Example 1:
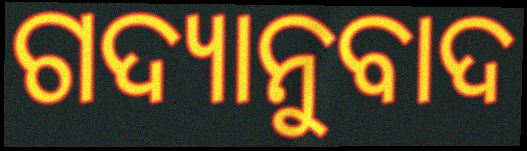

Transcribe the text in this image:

ଗଦ୍ୟାନୁବାଦ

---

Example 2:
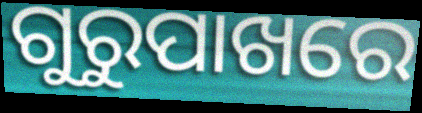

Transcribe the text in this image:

ଗୁରୁପାଖରେ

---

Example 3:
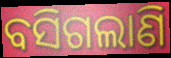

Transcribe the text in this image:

ବସିଗଲାଣି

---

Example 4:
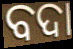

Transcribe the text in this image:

ବଦା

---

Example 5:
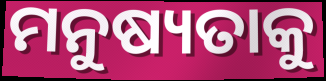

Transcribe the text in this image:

ମନୁଷ୍ୟତାକୁ